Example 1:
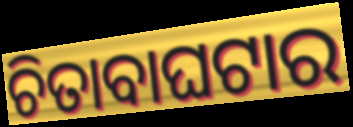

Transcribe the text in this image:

ଚିତାବାଘଟାର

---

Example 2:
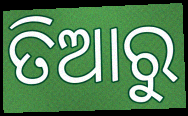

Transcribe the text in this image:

ତିଆରୁ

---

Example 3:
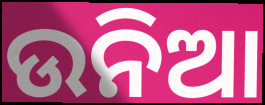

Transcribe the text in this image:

ଉନିଆ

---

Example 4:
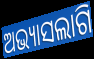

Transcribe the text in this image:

ଅଭ୍ୟାସଲାଗି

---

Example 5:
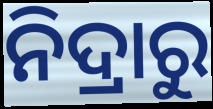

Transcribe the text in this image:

ନିଦ୍ରାରୁ